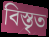
বিস্তৃত